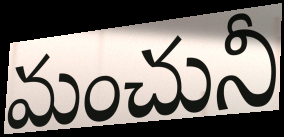
మంచునీ